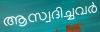
ആസ്വദിച്ചവർ